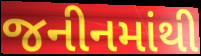
જનીનમાંથી